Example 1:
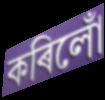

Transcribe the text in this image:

কৰিলোঁ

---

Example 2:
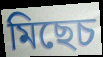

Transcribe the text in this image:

মিছেচ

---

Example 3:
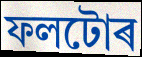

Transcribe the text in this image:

ফলটোৰ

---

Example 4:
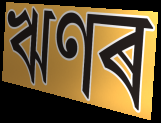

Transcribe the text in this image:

ঋণৰ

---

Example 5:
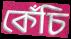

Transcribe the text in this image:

কেঁচি